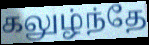
கலுழ்ந்தே